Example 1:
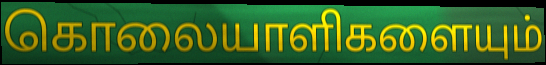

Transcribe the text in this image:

கொலையாளிகளையும்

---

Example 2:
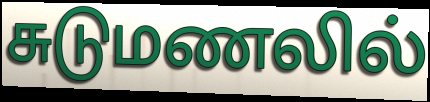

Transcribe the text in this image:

சுடுமணலில்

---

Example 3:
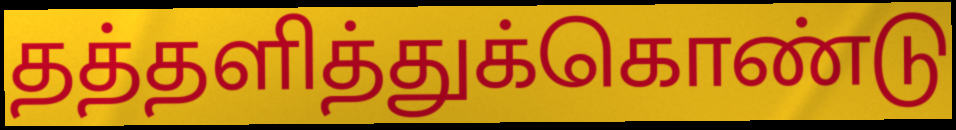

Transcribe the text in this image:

தத்தளித்துக்கொண்டு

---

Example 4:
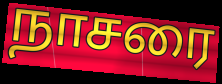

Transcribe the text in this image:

நாசரை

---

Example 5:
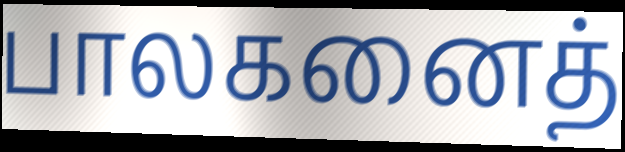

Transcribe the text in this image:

பாலகனைத்